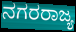
ನಗರರಾಜ್ಯ